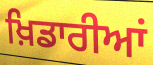
ਖ਼ਿਡਾਰੀਆਂ